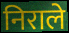
निराले